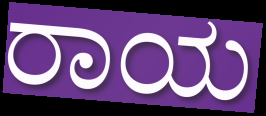
ರಾಯ